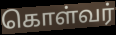
கொள்வர்